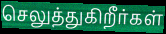
செலுத்துகிறீர்கள்